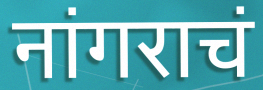
नांगराचं